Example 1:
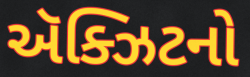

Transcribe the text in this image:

ઍક્ઝિટનો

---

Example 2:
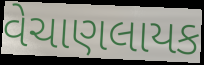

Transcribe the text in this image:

વેચાણલાયક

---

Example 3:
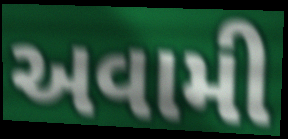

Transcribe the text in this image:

અવામી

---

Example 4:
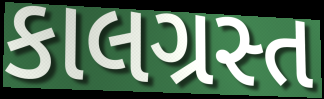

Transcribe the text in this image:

કાલગ્રસ્ત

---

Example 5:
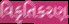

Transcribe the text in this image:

વિકૃતિકરણ